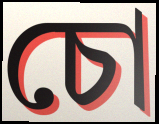
চো